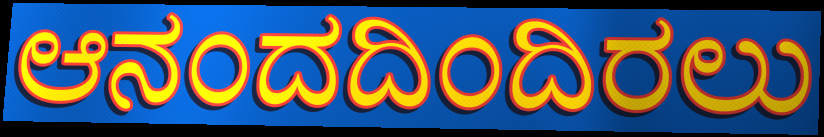
ಆನಂದದಿಂದಿರಲು